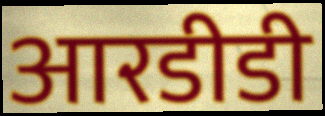
आरडीडी